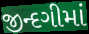
જીન્દગીમાં